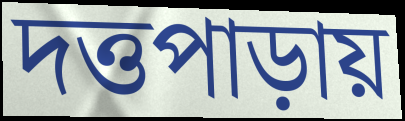
দত্তপাড়ায়